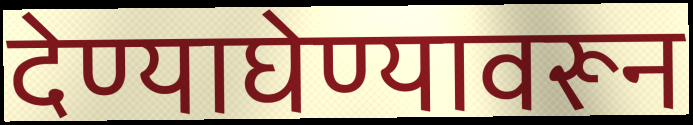
देण्याघेण्यावरून